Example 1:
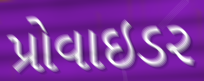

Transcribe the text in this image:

પ્રોવાઇડર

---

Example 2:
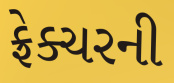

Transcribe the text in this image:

ફ્રેક્ચરની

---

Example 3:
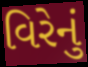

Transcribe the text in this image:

વિરેનું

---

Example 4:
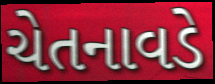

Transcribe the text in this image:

ચેતનાવડે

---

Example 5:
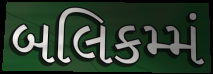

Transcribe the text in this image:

બલિકમ્મં